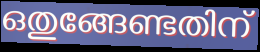
ഒതുങ്ങേണ്ടതിന്